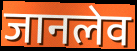
जानलेव